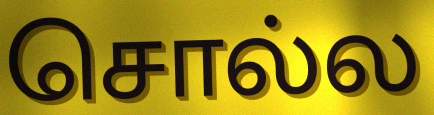
சொல்ல